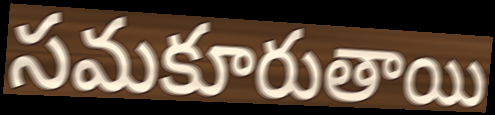
సమకూరుతాయి